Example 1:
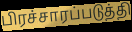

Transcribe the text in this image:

பிரச்சாரப்படுத்தி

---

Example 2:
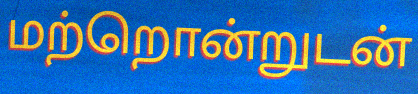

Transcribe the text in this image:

மற்றொன்றுடன்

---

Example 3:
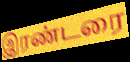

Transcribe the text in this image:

இரண்டரை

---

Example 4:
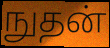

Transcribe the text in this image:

நுதன்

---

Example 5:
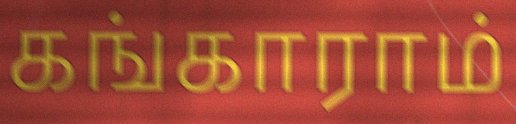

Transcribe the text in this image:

கங்காராம்